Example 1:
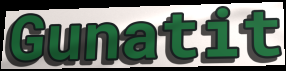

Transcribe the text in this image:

Gunatit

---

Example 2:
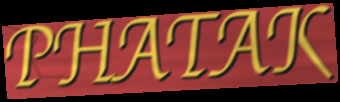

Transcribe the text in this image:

PHATAK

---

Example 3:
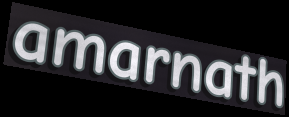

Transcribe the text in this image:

amarnath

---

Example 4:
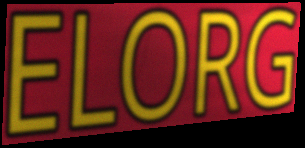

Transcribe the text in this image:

ELORG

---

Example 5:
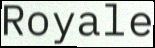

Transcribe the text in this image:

Royale